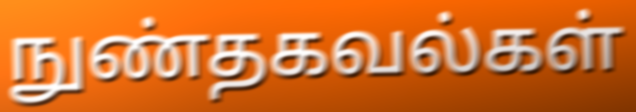
நுண்தகவல்கள்